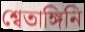
শ্বেতাঙ্গিনি